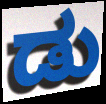
ಡು